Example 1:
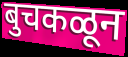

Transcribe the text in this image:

बुचकळून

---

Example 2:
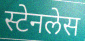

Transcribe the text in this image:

स्टेनलेस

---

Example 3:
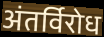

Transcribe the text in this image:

अंतर्विरोध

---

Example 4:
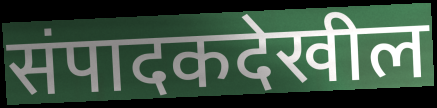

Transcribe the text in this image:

संपादकदेखील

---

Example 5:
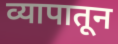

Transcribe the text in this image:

व्यापातून